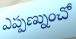
ఎప్పణ్నుంచో